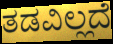
ತಡವಿಲ್ಲದೆ